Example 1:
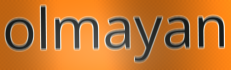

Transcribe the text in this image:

olmayan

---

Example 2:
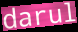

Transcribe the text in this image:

darul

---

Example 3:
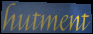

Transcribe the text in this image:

hutment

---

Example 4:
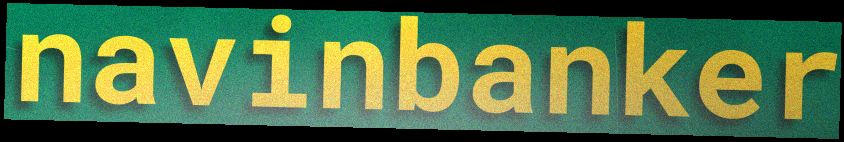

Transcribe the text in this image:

navinbanker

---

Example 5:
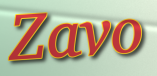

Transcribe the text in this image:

Zavo